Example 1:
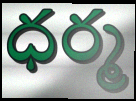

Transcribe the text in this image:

ధర్మ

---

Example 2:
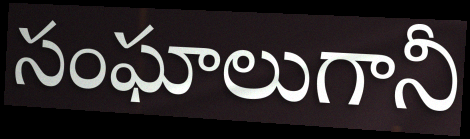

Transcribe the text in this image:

సంఘాలుగానీ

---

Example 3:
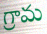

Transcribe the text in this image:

గ్రామ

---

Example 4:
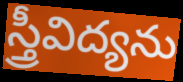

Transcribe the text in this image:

స్త్రీవిద్యను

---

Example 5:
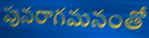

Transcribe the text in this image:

పునరాగమనంతో